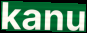
kanu